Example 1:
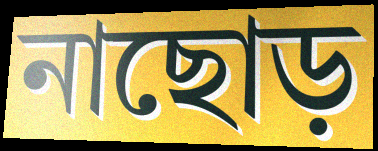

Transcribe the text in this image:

নাছোড়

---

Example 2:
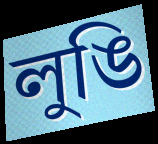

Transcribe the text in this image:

লুঙি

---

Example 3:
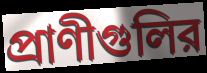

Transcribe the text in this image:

প্রাণীগুলির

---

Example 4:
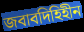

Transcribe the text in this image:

জবাবদিহিহীন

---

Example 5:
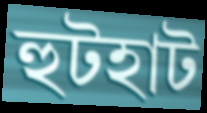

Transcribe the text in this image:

হুটহাট